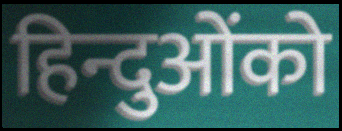
हिन्दुओंको